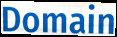
Domain